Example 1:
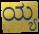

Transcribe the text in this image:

ಯ್ಯ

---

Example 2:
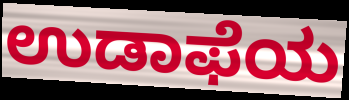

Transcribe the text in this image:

ಉಡಾಫೆಯ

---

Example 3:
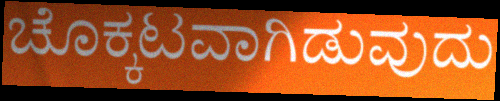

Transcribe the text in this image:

ಚೊಕ್ಕಟವಾಗಿಡುವುದು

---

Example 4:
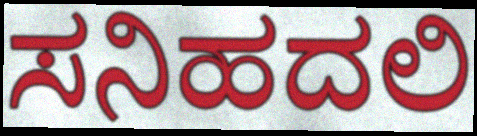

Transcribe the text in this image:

ಸನಿಹದಲಿ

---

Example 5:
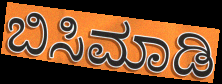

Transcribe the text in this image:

ಬಿಸಿಮಾಡಿ